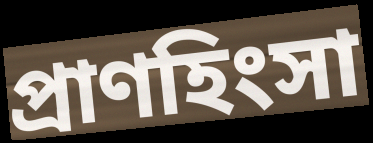
প্রাণহিংসা